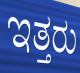
ಇತ್ತರು